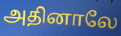
அதினாலே